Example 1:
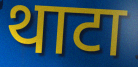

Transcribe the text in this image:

थाटा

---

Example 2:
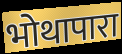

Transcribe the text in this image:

भोथापारा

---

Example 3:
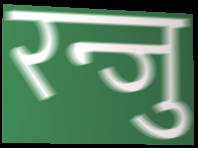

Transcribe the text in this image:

रन्जु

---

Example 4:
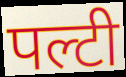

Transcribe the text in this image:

पल्टी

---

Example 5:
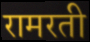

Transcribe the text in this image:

रामरती